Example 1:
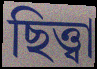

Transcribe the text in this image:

ছিত্ত্বা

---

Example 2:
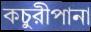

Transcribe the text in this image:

কচুরীপানা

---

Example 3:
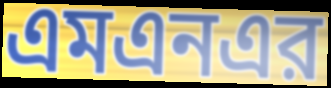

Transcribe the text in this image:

এমএনএর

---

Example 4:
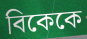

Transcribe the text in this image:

বিকেকে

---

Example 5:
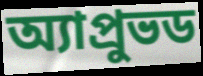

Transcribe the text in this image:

অ্যাপ্রুভড